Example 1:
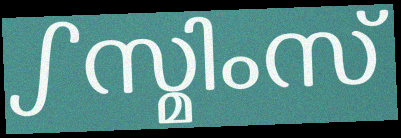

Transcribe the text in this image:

ഽസ്മിംസ്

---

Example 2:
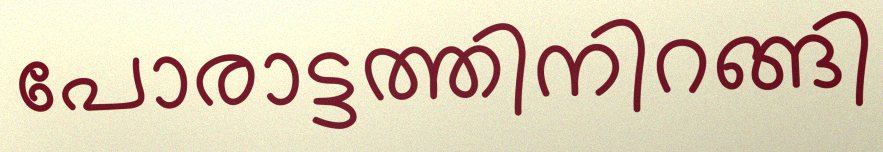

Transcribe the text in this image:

പോരാട്ടത്തിനിറങ്ങി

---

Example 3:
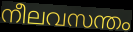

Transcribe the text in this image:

നീലവസന്തം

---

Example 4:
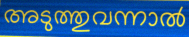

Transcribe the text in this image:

അടുത്തുവന്നാൽ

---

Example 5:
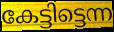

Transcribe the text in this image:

കേട്ടിട്ടെന്ന